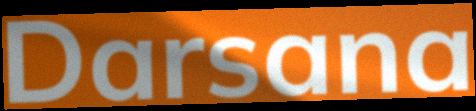
Darsana